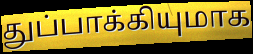
துப்பாக்கியுமாக